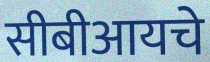
सीबीआयचे